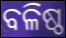
ବଳିଷ୍ଠ